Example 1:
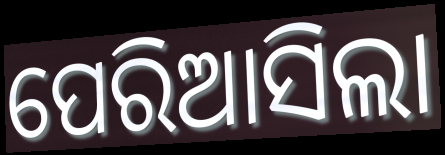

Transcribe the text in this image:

ପେରିଆସିଲା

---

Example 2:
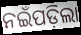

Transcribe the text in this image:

ନଇଁପଡ଼ିଲା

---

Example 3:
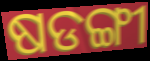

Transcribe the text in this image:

ଷଡଙ୍ଗୀ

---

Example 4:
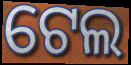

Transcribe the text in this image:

ଟେଲ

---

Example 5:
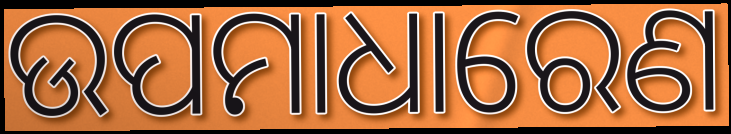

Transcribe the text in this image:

ଉପମାଧାରେଣ